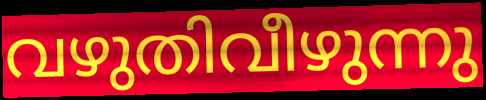
വഴുതിവീഴുന്നു